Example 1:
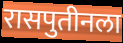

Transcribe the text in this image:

रासपुतीनला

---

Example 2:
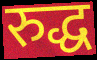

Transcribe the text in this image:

रुद्ध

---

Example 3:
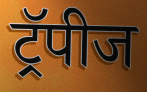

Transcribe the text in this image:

ट्रॅपीज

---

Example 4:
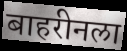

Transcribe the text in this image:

बाहरीनला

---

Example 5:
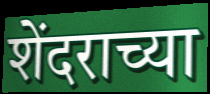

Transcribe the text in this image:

शेंदराच्या